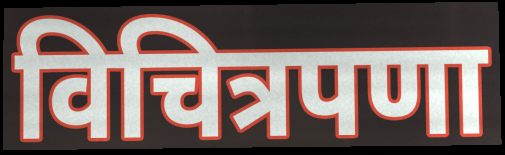
विचित्रपणा